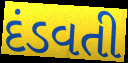
દંડવતી